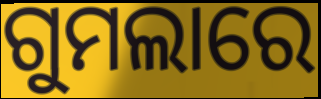
ଗୁମଲାରେ